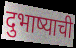
दुभाष्याची